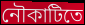
নৌকাটিতে